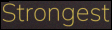
Strongest